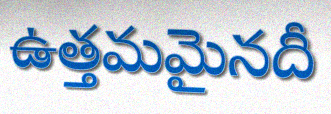
ఉత్తమమైనదీ